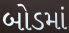
બોડમાં